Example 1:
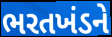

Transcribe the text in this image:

ભરતખંડને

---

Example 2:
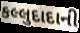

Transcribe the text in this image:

કલ્લુદાદાની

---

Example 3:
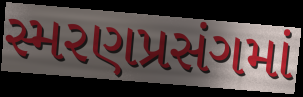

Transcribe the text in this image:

સ્મરણપ્રસંગમાં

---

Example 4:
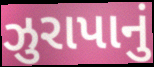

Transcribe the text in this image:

ઝુરાપાનું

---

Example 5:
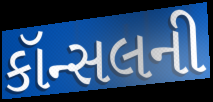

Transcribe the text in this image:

કૉન્સલની